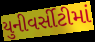
યુનીવર્સીટીમાં